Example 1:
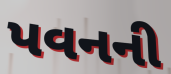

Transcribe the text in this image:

પવનની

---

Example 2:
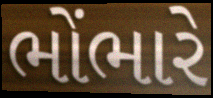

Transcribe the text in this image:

ભોંભારે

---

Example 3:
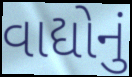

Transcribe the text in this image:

વાદ્યોનું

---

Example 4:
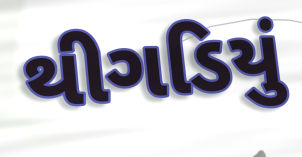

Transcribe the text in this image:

થીગડિયું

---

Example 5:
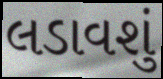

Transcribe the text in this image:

લડાવશું